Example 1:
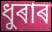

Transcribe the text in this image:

ধুৰাৰ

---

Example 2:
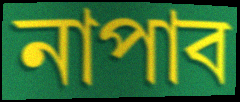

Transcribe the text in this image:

নাপাব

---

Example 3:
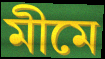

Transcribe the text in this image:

মীমে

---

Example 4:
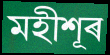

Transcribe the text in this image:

মহীশূৰ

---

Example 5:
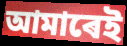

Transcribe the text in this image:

আমাৰেই